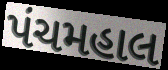
પંચમહાલ